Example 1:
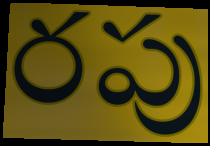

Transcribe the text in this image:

రపు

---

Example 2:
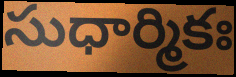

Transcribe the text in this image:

సుధార్మికః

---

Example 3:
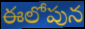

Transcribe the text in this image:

ఈలోపున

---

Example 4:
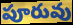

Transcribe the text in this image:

పూరువు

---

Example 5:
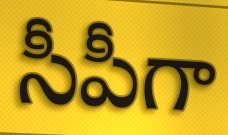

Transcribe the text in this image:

సీపీగా